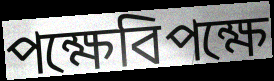
পক্ষেবিপক্ষে